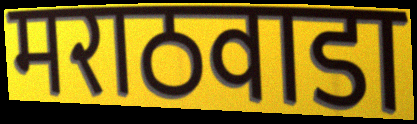
मराठवाडा